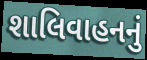
શાલિવાહનનું